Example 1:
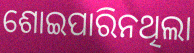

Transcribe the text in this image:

ଶୋଇପାରିନଥିଲା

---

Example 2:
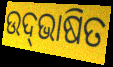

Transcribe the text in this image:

ଉଦ୍‍ଭାଷିତ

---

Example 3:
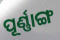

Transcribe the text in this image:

ପୂର୍ଣ୍ଣାଙ୍ଗ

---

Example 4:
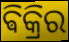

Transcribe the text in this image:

ଵିକ୍ରିର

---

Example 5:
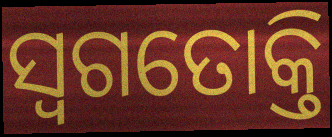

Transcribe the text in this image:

ସ୍ୱଗତୋକ୍ତି